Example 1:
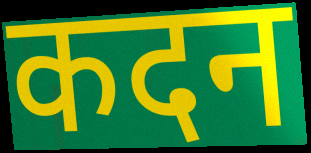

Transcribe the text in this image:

कदन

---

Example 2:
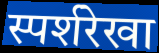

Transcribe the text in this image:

स्पर्शरेखा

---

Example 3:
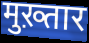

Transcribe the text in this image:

मुख़्तार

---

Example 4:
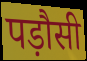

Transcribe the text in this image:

पड़ौसी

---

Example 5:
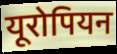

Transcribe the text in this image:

यूरोपियन